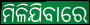
ମିଳିଯିବାରେ